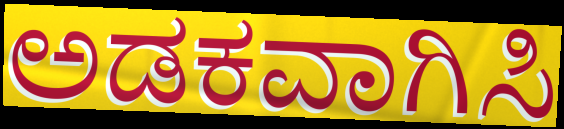
ಅಡಕವಾಗಿಸಿ